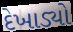
દેખાડ્યો